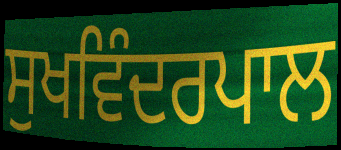
ਸੁਖਵਿੰਦਰਪਾਲ